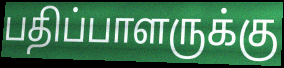
பதிப்பாளருக்கு